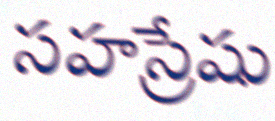
సహస్రేషు